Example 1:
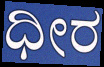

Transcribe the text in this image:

ಧೀರ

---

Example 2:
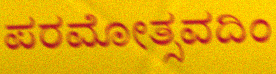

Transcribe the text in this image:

ಪರಮೋತ್ಸವದಿಂ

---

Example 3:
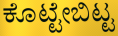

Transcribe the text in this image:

ಕೊಟ್ಟೇಬಿಟ್ಟ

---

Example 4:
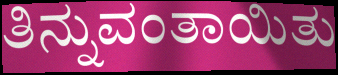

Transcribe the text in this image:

ತಿನ್ನುವಂತಾಯಿತು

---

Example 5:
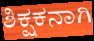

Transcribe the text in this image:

ಶಿಕ್ಷಕನಾಗಿ